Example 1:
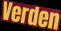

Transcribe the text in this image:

Verden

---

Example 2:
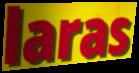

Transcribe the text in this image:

laras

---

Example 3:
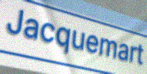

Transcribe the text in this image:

Jacquemart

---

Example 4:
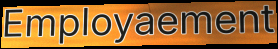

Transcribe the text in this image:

Employaement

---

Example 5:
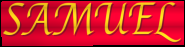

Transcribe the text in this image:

SAMUEL